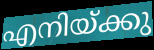
എനിയ്ക്കു